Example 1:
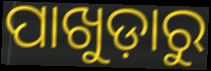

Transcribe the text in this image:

ପାଖୁଡ଼ାରୁ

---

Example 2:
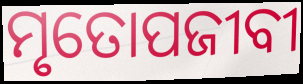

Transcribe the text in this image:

ମୃତୋପଜୀବୀ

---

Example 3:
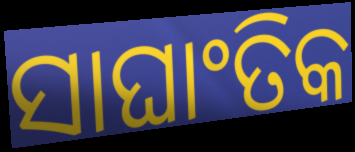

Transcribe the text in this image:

ସାଘାଂତିକ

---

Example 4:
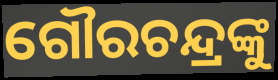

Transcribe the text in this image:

ଗୌରଚନ୍ଦ୍ରଙ୍କୁ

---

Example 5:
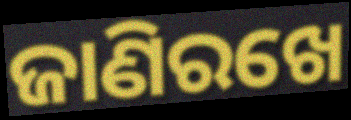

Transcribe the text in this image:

ଜାଣିରଖେ